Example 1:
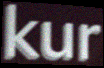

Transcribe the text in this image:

kur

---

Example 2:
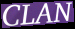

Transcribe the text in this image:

CLAN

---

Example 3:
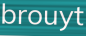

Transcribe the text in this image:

brouyt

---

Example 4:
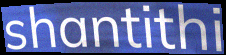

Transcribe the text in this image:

shantithi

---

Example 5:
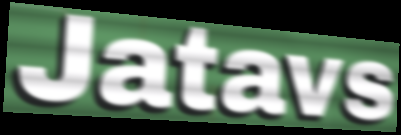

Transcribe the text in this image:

Jatavs